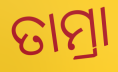
ତାମ୍ରା